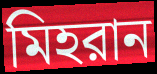
মিহরান